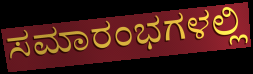
ಸಮಾರಂಭಗಳಲ್ಲಿ